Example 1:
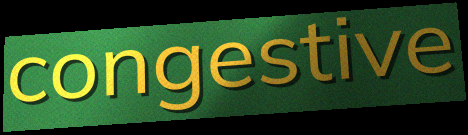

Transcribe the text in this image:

congestive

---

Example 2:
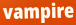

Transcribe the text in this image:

vampire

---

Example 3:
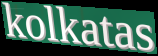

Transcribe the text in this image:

kolkatas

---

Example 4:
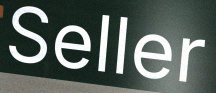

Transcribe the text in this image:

Seller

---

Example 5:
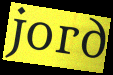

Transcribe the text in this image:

jord